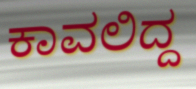
ಕಾವಲಿದ್ದ